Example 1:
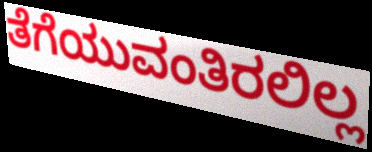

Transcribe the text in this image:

ತೆಗೆಯುವಂತಿರಲಿಲ್ಲ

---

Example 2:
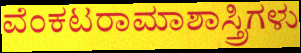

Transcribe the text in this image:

ವೆಂಕಟರಾಮಾಶಾಸ್ತ್ರಿಗಳು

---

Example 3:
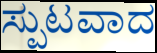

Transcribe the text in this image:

ಸ್ಪುಟವಾದ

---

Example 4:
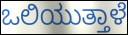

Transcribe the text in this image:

ಒಲಿಯುತ್ತಾಳೆ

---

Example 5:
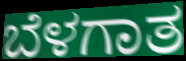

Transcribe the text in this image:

ಬೆಳಗಾತ